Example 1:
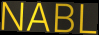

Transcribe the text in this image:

NABL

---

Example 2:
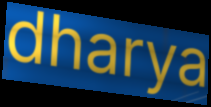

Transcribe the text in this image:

dharya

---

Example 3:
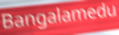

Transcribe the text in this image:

Bangalamedu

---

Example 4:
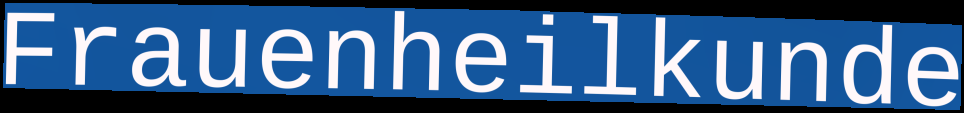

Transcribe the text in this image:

Frauenheilkunde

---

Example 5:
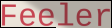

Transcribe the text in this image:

Feeler